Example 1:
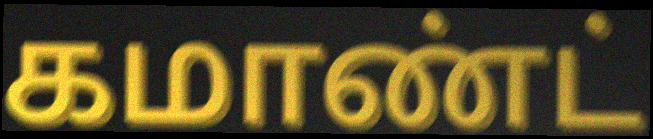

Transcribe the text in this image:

கமாண்ட்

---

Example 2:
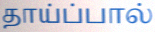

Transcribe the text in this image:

தாய்ப்பால்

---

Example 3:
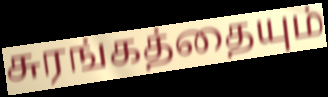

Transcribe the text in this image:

சுரங்கத்தையும்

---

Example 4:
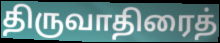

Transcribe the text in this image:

திருவாதிரைத்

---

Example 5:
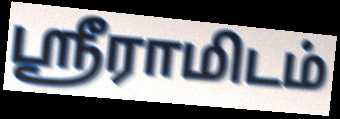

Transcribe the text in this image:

ஸ்ரீராமிடம்